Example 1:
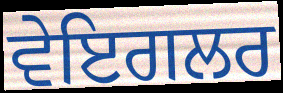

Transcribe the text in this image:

ਵੇਇਗਲਰ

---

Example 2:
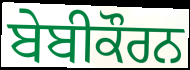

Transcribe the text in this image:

ਬੇਬੀਕੌਰਨ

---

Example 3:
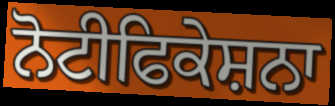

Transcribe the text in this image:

ਨੋਟੀਫਿਕੇਸ਼ਨਾ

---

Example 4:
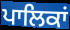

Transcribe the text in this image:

ਪਾਲਿਕਾਂ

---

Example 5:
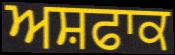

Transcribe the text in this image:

ਅਸ਼ਫਾਕ